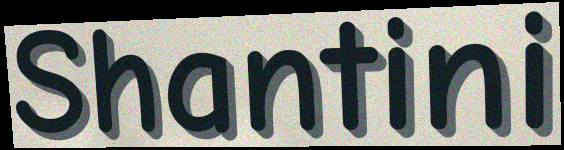
Shantini